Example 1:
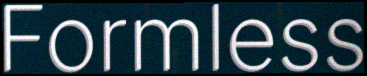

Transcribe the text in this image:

Formless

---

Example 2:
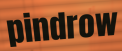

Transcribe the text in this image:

pindrow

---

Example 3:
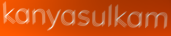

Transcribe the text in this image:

kanyasulkam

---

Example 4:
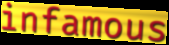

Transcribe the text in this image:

infamous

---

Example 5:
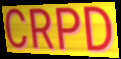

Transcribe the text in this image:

CRPD